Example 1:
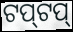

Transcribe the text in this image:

ଟପ୍‌ଟପ୍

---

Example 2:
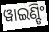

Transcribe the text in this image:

ୱାଇଣ୍ଡିଂ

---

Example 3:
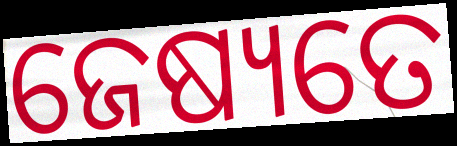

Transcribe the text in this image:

ଜେଷ୍ୟତେ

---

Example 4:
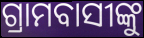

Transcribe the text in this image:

ଗ୍ରାମବାସୀଙ୍କୁ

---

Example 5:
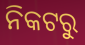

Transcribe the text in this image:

ନିକଟରୁ